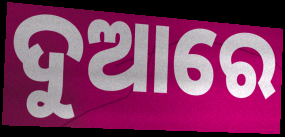
ଦୁଆରେ